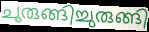
ചുരുങ്ങിച്ചുരുങ്ങി